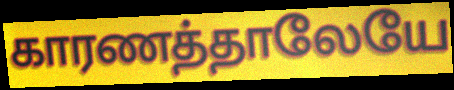
காரணத்தாலேயே